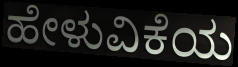
ಹೇಳುವಿಕೆಯ